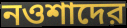
নওশাদের